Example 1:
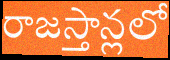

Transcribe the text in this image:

రాజస్తాన్లలో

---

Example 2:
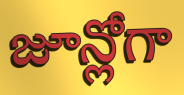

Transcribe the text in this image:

జూన్లోగా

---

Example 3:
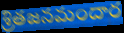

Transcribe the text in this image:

శ్రితజనమందార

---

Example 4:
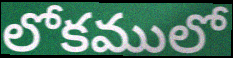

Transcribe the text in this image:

లోకములో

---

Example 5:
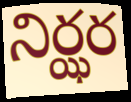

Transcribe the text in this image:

నిర్ఝర